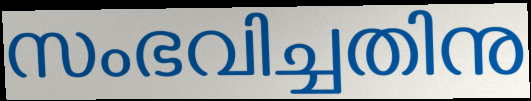
സംഭവിച്ചതിനു